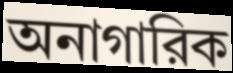
অনাগারিক